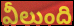
వీలుంది